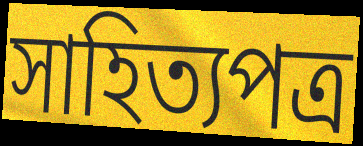
সাহিত্যপত্র